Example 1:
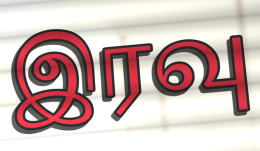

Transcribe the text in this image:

இரவு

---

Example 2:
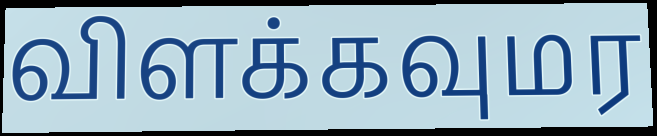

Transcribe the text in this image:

விளக்கவுமர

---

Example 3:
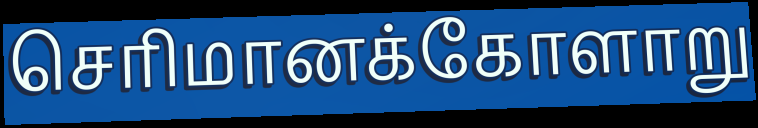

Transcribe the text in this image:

செரிமானக்கோளாறு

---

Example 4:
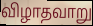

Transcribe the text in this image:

விழாதவாறு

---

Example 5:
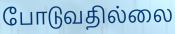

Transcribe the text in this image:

போடுவதில்லை